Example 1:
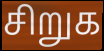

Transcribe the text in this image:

சிறுக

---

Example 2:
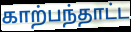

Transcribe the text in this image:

காற்பந்தாட்ட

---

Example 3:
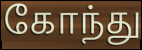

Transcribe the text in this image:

கோந்து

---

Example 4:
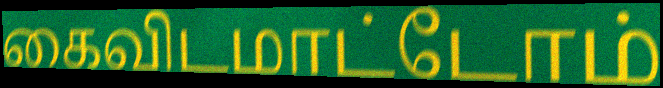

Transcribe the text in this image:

கைவிடமாட்டோம்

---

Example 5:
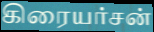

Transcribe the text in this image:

கிரையர்சன்